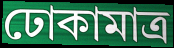
ঢোকামাত্র